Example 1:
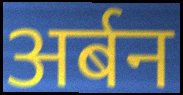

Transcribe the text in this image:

अर्बन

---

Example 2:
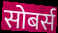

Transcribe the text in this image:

सोबर्स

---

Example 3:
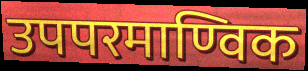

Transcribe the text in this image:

उपपरमाण्विक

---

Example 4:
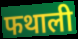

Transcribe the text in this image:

फथाली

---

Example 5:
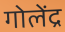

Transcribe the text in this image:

गोलेंद्र